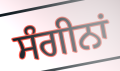
ਸੰਗੀਨਾਂ